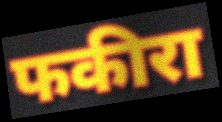
फकीरा